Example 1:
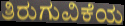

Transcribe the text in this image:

ತಿರುಗುವಿಕೆಯ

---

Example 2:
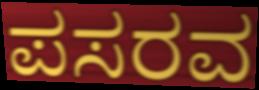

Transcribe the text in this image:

ಪಸರವ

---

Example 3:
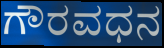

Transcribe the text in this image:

ಗೌರವಧನ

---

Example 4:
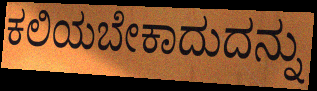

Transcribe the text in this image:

ಕಲಿಯಬೇಕಾದುದನ್ನು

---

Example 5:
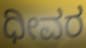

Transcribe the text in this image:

ಧೀವರ